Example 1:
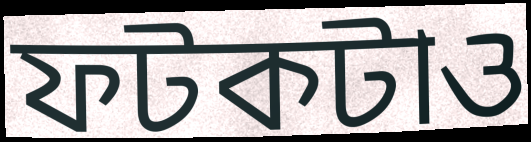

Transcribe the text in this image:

ফটকটাও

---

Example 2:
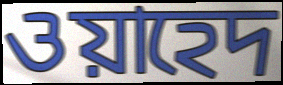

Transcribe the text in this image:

ওয়াহেদ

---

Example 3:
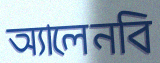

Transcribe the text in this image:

অ্যালেনবি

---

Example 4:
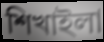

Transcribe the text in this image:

শিখাইলা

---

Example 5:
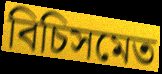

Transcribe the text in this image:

বিচিসমেত